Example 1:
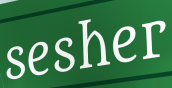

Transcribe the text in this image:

sesher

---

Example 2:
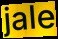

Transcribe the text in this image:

jale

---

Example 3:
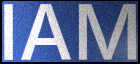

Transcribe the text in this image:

IAM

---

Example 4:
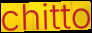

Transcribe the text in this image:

chitto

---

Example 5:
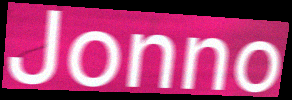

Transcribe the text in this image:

Jonno